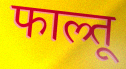
फाल्तू